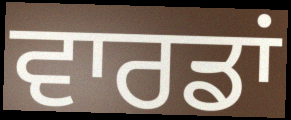
ਵਾਰਡਾਂ